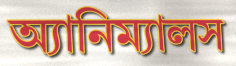
অ্যানিম্যালস